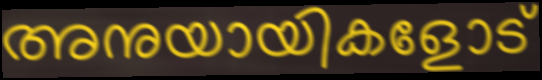
അനുയായികളോട്